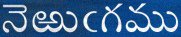
నెఱుఁగము